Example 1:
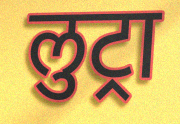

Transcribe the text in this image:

लुट्रा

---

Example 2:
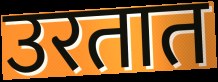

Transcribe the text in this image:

उरतात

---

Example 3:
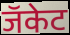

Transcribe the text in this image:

जॅकेट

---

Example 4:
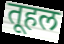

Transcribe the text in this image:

तूहल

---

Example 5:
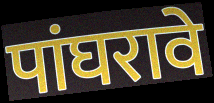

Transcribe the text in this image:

पांघरावे